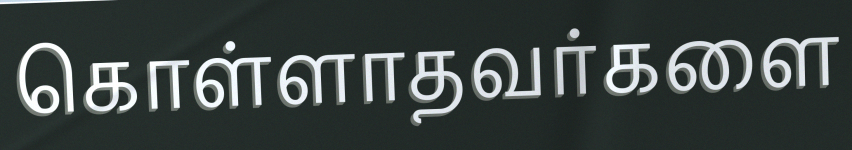
கொள்ளாதவர்களை